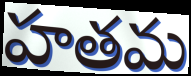
హతమ